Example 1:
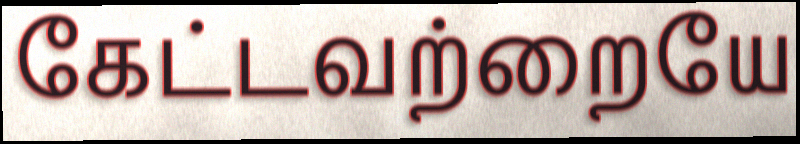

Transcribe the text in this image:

கேட்டவற்றையே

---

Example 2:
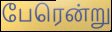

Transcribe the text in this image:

பேரென்று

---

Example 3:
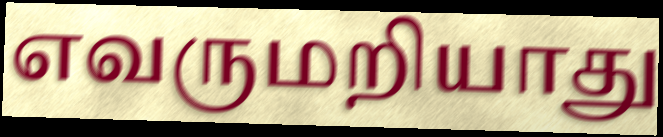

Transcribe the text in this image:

எவருமறியாது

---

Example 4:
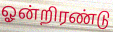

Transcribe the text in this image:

ஓன்றிரண்டு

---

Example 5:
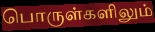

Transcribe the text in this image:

பொருள்களிலும்